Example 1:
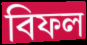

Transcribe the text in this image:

বিফল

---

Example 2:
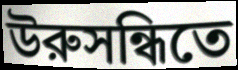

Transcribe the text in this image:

উরুসন্ধিতে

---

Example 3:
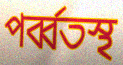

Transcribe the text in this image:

পর্ব্বতস্থ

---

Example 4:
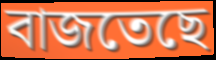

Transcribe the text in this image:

বাজতেছে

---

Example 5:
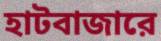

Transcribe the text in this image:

হাটবাজারে